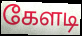
கேளடி